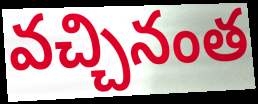
వచ్చినంత